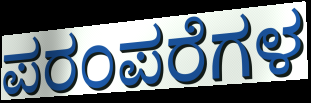
ಪರಂಪರೆಗಳ